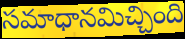
సమాధానమిచ్చింది